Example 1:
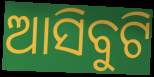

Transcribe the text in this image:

ଆସିବୁଟି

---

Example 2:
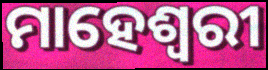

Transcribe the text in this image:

ମାହେଶ୍ଵରୀ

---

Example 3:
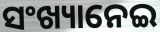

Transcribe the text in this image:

ସଂଖ୍ୟାନେଇ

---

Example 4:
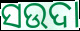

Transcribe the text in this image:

ସଉଦା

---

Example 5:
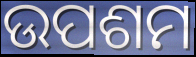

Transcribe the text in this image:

ଉପଶମ